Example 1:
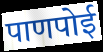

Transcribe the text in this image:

पाणपोई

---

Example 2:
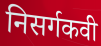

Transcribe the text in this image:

निसर्गकवी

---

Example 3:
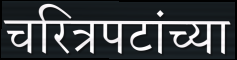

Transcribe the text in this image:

चरित्रपटांच्या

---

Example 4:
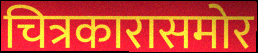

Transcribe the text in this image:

चित्रकारासमोर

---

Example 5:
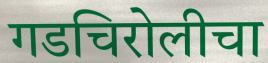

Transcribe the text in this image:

गडचिरोलीचा